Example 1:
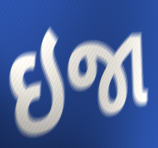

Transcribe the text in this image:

ઇજા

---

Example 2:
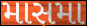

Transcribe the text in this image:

માસમા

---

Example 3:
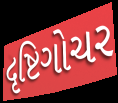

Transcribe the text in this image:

દૃષ્ટિગોચર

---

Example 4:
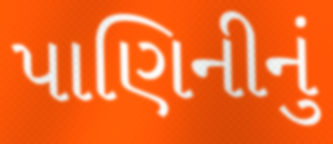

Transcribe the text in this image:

પાણિનીનું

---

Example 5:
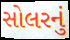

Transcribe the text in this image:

સોલરનું